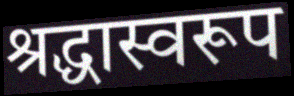
श्रद्धास्वरूप